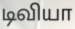
டிவியா